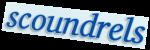
scoundrels